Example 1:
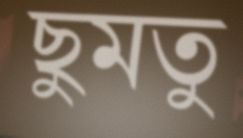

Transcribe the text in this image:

ছুমতু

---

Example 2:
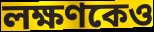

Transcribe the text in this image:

লক্ষণকেও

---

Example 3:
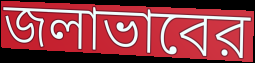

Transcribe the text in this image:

জলাভাবের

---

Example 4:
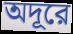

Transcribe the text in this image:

অদূরে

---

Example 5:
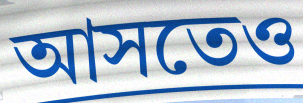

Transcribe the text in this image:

আসতেও